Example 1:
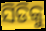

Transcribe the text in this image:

ସିଡିକୁ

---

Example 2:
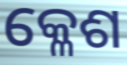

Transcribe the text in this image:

କ୍ଳେଶ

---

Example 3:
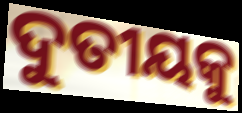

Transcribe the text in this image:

ଦୁତୀୟକୁ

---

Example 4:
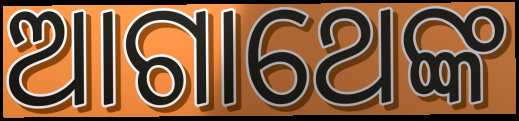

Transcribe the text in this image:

ଆଗାଥେଙ୍କ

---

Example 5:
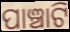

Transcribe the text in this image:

ପାଞ୍ଚାଟି